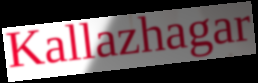
Kallazhagar